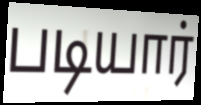
படியார்